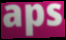
aps